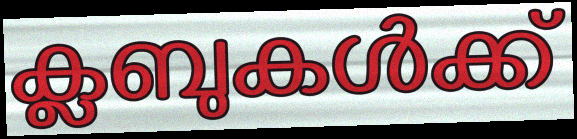
ക്ലബുകൾക്ക്